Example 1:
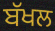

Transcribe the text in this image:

ਬੱਖਲ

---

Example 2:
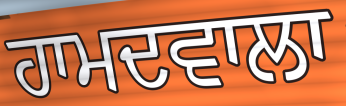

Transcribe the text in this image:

ਹਾਮਦਵਾਲਾ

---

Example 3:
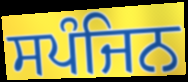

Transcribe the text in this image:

ਸਪੰਜਿਨ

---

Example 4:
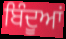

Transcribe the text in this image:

ਬਿੰਦੂਆਂ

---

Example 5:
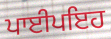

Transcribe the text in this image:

ਪਾਈਪਇਹ